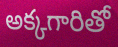
అక్కగారితో